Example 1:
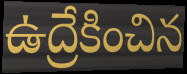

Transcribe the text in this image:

ఉద్రేకించిన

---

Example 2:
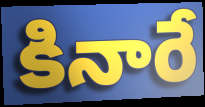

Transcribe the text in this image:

కినారే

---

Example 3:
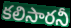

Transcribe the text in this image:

కలిసారనీ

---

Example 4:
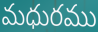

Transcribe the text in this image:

మధురము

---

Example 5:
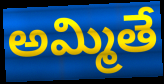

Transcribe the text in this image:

అమ్మితే